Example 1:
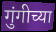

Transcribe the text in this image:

गुंगीच्या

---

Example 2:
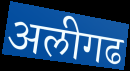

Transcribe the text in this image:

अलीगढ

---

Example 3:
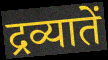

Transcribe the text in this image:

द्रव्यातें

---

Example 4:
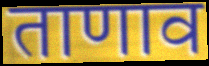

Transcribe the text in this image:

ताणाव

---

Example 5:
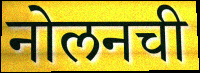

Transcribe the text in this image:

नोलनची